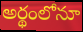
అర్థంలోనూ